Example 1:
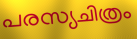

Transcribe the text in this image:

പരസ്യചിത്രം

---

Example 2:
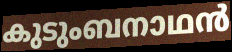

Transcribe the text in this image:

കുടുംബനാഥൻ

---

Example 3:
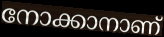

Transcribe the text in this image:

നോക്കാനാണ്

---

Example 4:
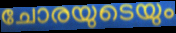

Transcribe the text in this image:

ചോരയുടെയും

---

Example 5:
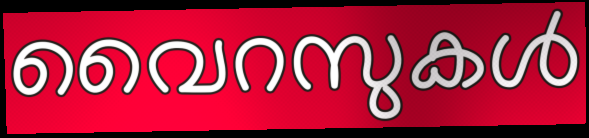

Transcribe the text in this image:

വൈറസുകൾ